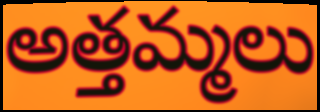
అత్తమ్మలు